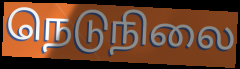
நெடுநிலை